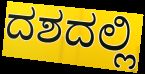
ದಶದಲ್ಲಿ